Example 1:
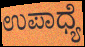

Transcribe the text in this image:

ಉಪಾಧ್ಯೆ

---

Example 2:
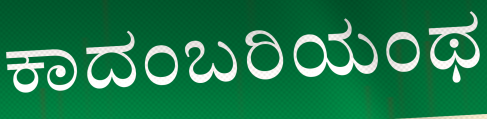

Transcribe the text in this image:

ಕಾದಂಬರಿಯಂಥ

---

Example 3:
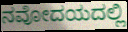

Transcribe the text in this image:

ನವೋದಯದಲ್ಲಿ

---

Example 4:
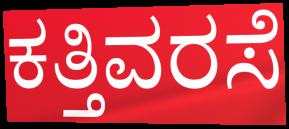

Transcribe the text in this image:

ಕತ್ತಿವರಸೆ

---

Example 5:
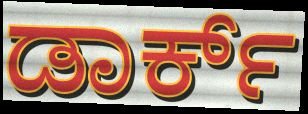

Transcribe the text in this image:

ಡಾರ್ಕ್